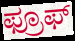
ಫ್ರೂಫ್